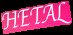
HETAL